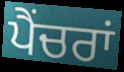
ਪੈਂਚਰਾਂ